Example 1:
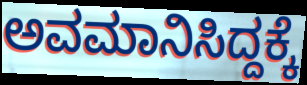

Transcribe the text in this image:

ಅವಮಾನಿಸಿದ್ದಕ್ಕೆ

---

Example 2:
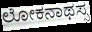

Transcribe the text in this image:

ಲೋಕನಾಥಸ್ಸ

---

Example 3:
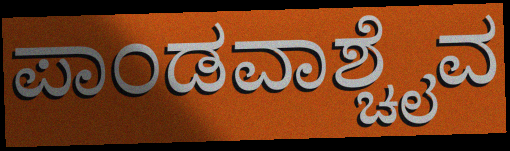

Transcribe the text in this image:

ಪಾಂಡವಾಶ್ಚೈವ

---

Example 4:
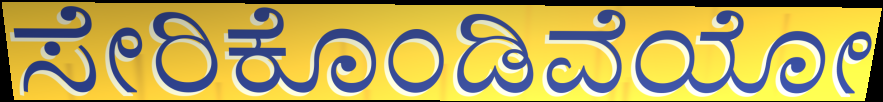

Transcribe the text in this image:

ಸೇರಿಕೊಂಡಿವೆಯೋ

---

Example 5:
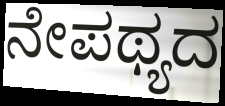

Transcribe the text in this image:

ನೇಪಥ್ಯದ